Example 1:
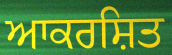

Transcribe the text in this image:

ਆਕਰਸ਼ਿਤ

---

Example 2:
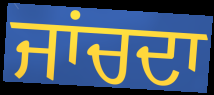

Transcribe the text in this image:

ਜਾਂਚਦਾ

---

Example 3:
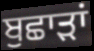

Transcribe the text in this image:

ਬੁਛਾੜਾਂ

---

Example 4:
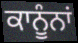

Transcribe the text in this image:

ਕਾਨੂੰਨਾਂ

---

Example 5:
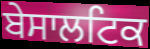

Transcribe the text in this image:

ਬੇਸਾਲਟਿਕ